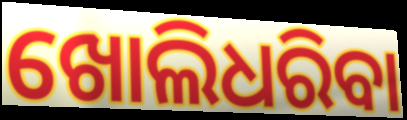
ଖୋଲିଧରିବା